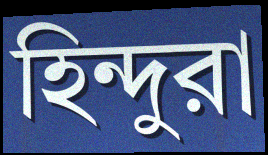
হিন্দুরা